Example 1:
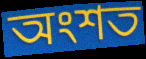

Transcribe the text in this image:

অংশত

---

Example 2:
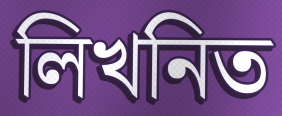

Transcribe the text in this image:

লিখনিত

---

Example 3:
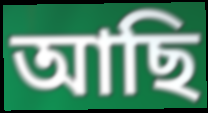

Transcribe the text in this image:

আছি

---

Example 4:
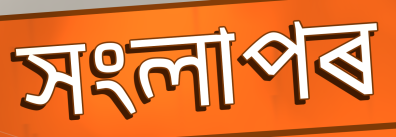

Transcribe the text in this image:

সংলাপৰ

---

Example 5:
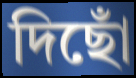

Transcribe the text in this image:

দিছোঁ